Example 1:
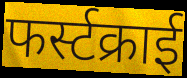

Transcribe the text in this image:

फर्स्टक्राई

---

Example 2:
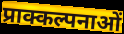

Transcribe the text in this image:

प्राक्कल्पनाओं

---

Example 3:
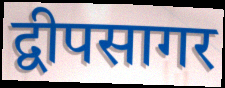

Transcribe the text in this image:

द्वीपसागर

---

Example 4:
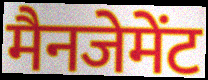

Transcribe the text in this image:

मैनजेमेंट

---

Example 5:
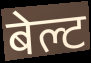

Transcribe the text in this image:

बेल्‍ट